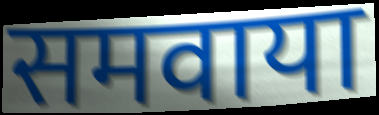
समवाया